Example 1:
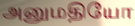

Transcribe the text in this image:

அனுமதியோ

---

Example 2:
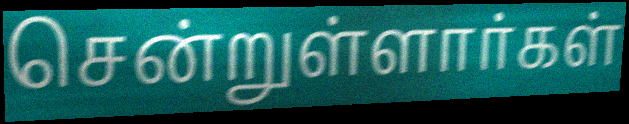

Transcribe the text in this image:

சென்றுள்ளார்கள்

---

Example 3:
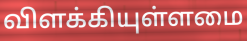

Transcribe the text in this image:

விளக்கியுள்ளமை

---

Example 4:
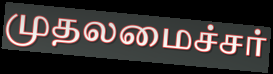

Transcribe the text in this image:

முதலமைச்சர்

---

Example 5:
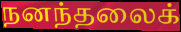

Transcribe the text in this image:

நனந்தலைக்